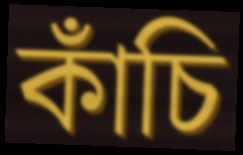
কাঁচি